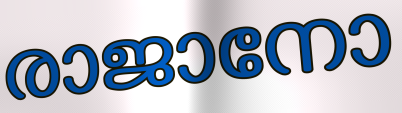
രാജാനോ